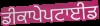
ਡੀਕਾਪੇਪਟਾਈਡ